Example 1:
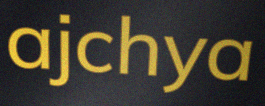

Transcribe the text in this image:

ajchya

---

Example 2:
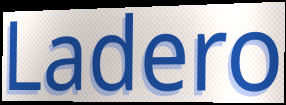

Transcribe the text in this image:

Ladero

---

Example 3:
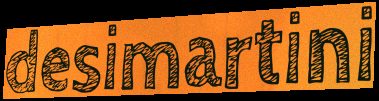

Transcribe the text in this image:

desimartini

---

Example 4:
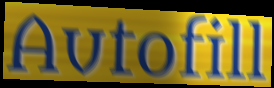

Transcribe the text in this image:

Autofill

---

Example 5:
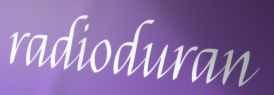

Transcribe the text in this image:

radioduran